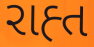
રાહ્ત